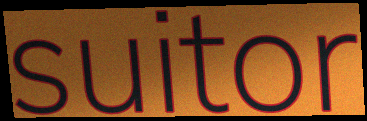
suitor